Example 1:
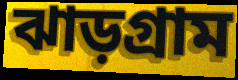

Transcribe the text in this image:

ঝাড়গ্রাম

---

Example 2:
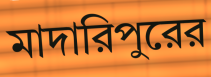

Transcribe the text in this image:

মাদারিপুরের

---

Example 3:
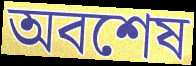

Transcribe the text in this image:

অবশেষ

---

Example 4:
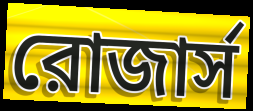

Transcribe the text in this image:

রোজার্স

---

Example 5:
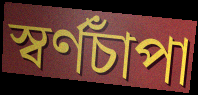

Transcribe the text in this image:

স্বর্ণচাঁপা